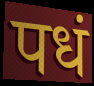
पधं